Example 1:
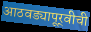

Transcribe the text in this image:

आठवड्यापूर्वीची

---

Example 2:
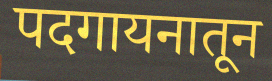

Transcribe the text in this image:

पदगायनातून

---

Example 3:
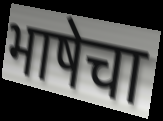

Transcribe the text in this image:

भाषेचा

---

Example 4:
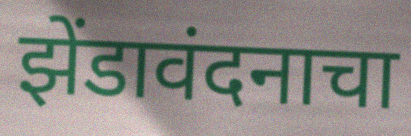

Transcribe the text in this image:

झेंडावंदनाचा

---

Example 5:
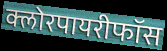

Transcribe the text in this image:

क्लोरपायरीफॉस